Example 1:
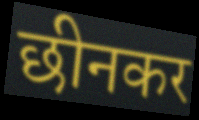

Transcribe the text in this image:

छीनकर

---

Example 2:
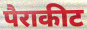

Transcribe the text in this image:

पैराकीट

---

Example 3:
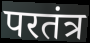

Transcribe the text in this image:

परतंत्र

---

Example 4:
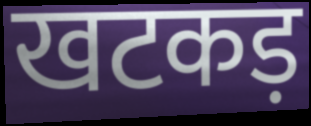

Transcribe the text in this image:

खटकड़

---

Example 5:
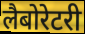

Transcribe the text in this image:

लैबोरेटरी